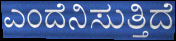
ಎಂದೆನಿಸುತ್ತಿದೆ